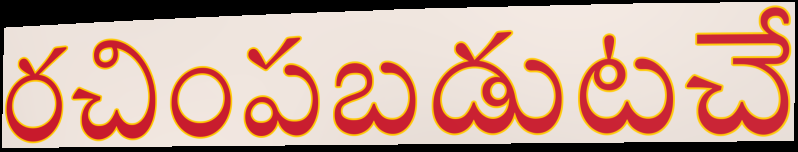
రచింపబడుటచే